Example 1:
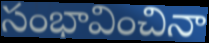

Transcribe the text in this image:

సంభావించినా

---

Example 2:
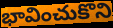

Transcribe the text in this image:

భావించుకొని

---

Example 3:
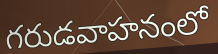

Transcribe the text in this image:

గరుడవాహనంలో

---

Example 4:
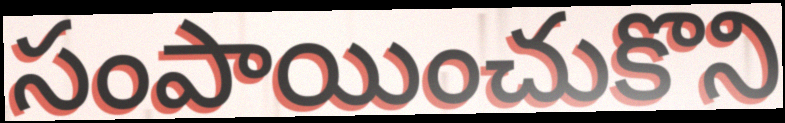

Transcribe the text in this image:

సంపాయించుకొని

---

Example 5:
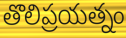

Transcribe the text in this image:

తొలిప్రయత్నం